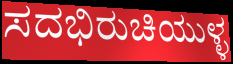
ಸದಭಿರುಚಿಯುಳ್ಳ